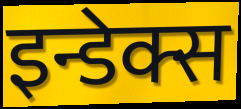
इन्डेक्स